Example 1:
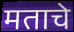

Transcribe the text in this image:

मताचे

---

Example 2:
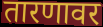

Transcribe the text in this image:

तारणावर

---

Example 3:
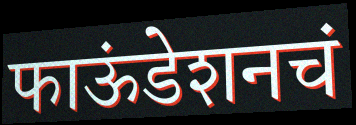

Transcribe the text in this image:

फाऊंडेशनचं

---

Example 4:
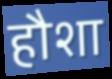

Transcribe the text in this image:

हौशा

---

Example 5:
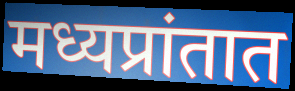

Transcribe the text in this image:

मध्यप्रांतात